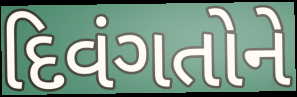
દિવંગતોને